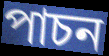
পাচন